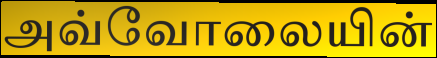
அவ்வோலையின்